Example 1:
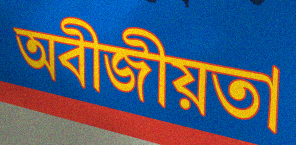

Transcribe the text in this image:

অবীজীয়তা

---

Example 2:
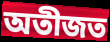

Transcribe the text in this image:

অতীজত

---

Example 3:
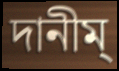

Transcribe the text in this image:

দানীম্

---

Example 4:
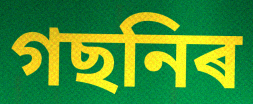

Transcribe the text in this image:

গছনিৰ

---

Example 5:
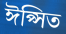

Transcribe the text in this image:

ঈপ্সিত